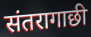
संतरागाछी